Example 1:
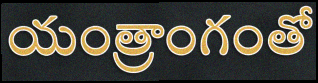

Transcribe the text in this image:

యంత్రాంగంతో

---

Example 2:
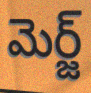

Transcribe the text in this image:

మెర్జ్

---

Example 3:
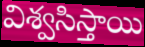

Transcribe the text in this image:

విశ్వసిస్తాయి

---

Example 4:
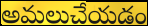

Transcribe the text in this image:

అమలుచేయడం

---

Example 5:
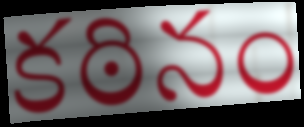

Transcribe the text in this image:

కఠినం